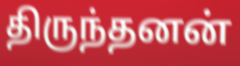
திருந்தனன்